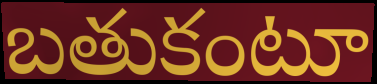
బతుకంటూ